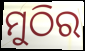
ମୁଠିର